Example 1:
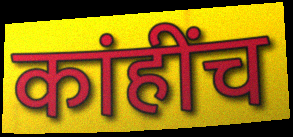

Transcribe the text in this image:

कांहींच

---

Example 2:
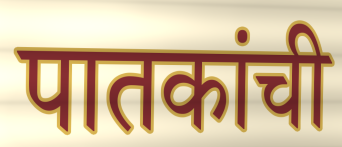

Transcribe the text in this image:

पातकांची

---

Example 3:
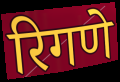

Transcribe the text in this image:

रिगणे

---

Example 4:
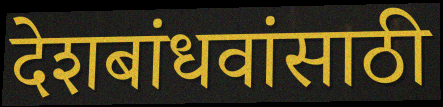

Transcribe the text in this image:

देशबांधवांसाठी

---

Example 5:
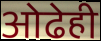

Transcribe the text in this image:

ओढेही